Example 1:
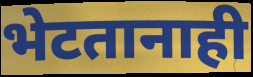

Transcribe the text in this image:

भेटतानाही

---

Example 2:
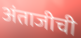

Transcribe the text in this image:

अंताजीची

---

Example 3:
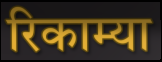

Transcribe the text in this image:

रिकाम्या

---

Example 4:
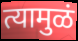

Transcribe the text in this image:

त्यामुळं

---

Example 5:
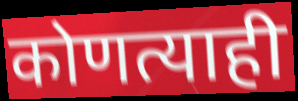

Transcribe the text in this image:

कोणत्याही